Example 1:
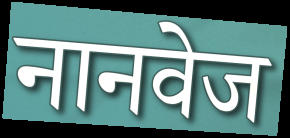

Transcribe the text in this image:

नानवेज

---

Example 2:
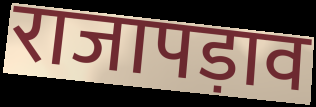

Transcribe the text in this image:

राजापड़ाव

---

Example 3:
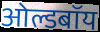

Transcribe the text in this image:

ओल्डबॉय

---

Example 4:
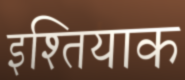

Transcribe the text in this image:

इश्तियाक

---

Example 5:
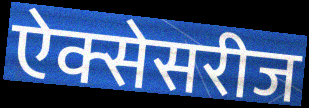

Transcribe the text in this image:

ऐक्सेसरीज